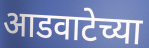
आडवाटेच्या